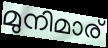
മുനിമാര്